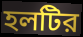
হলটির